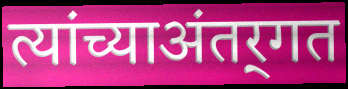
त्यांच्याअंतर्गत